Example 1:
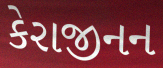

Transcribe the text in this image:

કેરાજીનન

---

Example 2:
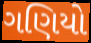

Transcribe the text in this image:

ગણિયો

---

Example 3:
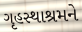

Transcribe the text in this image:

ગૃહસ્થાશ્રમને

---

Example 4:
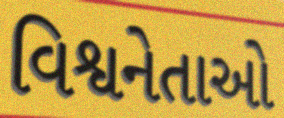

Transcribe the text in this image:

વિશ્વનેતાઓ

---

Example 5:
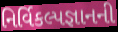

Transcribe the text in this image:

નિર્વિકલ્પજ્ઞાનની